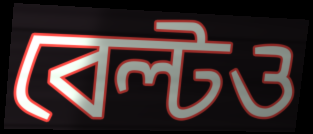
বেল্টও